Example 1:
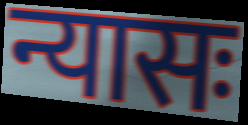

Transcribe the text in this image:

न्यासः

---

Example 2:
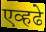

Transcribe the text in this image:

एव्हढे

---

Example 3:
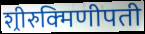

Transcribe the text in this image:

श्रीरुक्मिणीपती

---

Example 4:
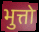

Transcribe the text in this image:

भुत्तो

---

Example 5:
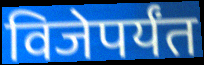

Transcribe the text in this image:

विजेपर्यंत